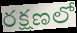
రక్షణలో